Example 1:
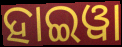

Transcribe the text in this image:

ହାଇୱା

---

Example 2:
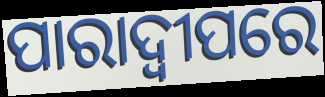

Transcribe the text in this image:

ପାରାଦ୍ବୀପରେ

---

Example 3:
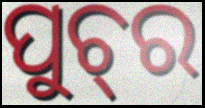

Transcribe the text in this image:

ପୁଚ୍‍ର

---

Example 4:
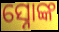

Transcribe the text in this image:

ସ୍ନୋଙ୍କ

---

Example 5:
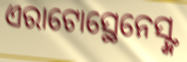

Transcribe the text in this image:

ଏରାଟୋସ୍ଥେନେସ୍ଙ୍କ